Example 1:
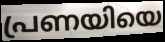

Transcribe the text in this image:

പ്രണയിയെ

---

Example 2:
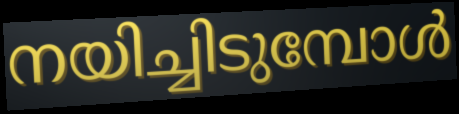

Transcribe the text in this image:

നയിച്ചിടുമ്പോൾ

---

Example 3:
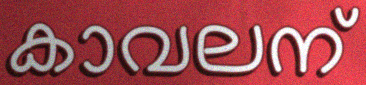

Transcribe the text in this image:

കാവലന്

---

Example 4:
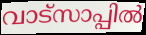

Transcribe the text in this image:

വാട്സാപ്പിൽ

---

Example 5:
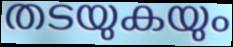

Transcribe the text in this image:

തടയുകയും